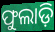
ଫୁଲାଡ଼ି